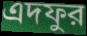
এদফুর